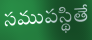
సముపస్థితే